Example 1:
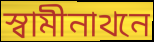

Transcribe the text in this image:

স্বামীনাথনে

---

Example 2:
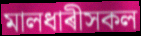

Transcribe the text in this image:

মালধাৰীসকল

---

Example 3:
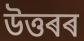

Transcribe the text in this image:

উত্তৰৰ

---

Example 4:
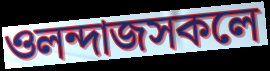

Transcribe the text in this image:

ওলন্দাজসকলে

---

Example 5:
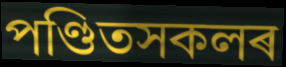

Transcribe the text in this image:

পণ্ডিতসকলৰ